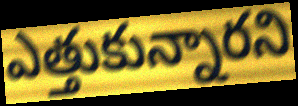
ఎత్తుకున్నారని